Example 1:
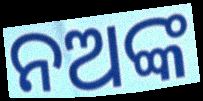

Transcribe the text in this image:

ନଅଙ୍କ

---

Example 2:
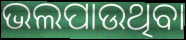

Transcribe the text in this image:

ଭଲପାଉଥିବା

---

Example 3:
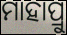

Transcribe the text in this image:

ମାହାପ୍ରୁ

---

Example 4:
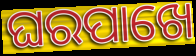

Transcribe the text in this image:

ଘରପାଖେ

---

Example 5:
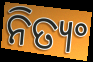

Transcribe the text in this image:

ନିତ୍ୟଂ